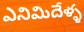
ఎనిమిదేళ్ళ